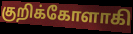
குறிக்கோளாகி